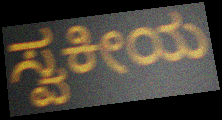
ಸ್ವಕೀಯ